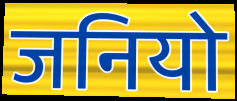
जनियो